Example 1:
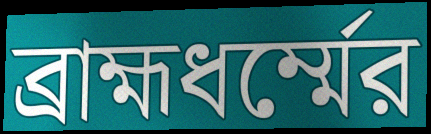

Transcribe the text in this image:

ব্রাহ্মধর্ম্মের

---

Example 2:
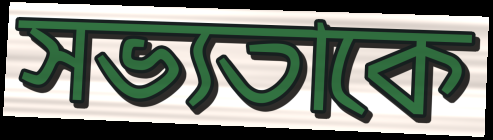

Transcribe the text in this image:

সভ্যতাকে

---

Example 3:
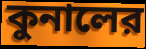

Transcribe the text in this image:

কুনালের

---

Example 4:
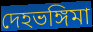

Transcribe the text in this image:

দেহভঙ্গিমা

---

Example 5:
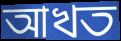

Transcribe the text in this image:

আখত